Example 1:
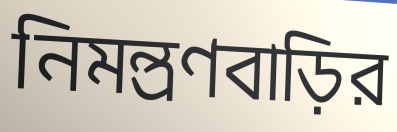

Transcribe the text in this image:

নিমন্ত্রণবাড়ির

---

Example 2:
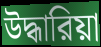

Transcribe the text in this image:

উদ্ধারিয়া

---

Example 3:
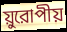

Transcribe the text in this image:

য়ুরোপীয়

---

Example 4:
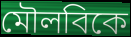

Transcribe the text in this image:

মৌলবিকে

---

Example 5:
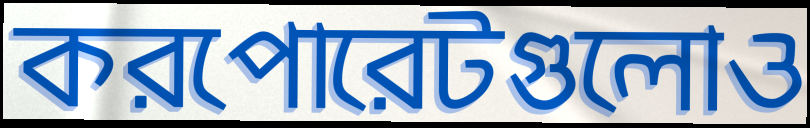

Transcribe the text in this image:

করপোরেটগুলোও